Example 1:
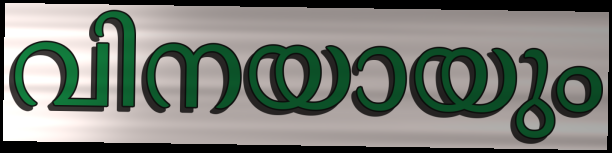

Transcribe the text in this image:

വിനയായും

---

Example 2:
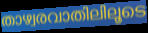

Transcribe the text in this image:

താഴ്വരവാതിലിലൂടെ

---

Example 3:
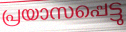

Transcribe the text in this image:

പ്രയാസപ്പെട്ടു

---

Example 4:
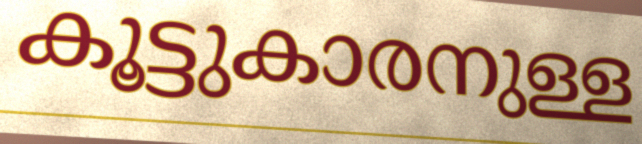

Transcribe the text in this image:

കൂട്ടുകാരനുള്ള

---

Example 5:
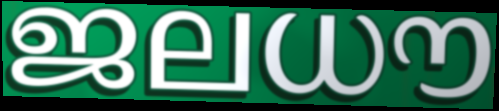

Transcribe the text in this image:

ജലധൗ